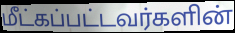
மீட்கப்பட்டவர்களின்